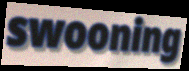
swooning